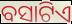
ବସାଟିଏ